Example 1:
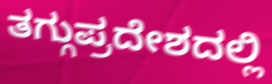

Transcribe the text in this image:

ತಗ್ಗುಪ್ರದೇಶದಲ್ಲಿ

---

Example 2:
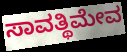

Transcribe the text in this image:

ಸಾವತ್ಥಿಮೇವ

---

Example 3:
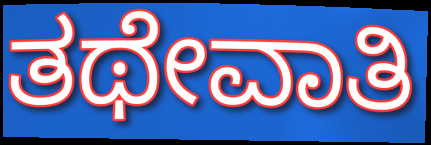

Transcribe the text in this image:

ತಥೇವಾತಿ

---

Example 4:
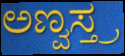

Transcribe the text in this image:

ಅಣ್ವಸ್ತ್ರ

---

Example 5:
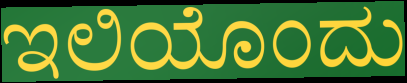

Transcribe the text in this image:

ಇಲಿಯೊಂದು